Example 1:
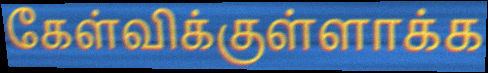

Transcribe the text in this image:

கேள்விக்குள்ளாக்க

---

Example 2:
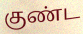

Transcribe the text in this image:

குண்ட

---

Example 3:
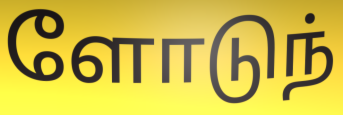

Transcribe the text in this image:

ளோடுந்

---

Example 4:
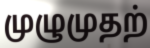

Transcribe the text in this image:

முழுமுதற்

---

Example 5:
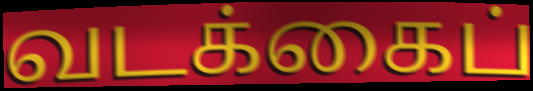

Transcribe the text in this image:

வடக்கைப்